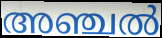
അഞ്ചൽ